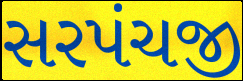
સરપંચજી